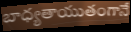
బాధ్యతాయుతంగానే